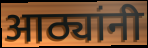
आठ्यांनी